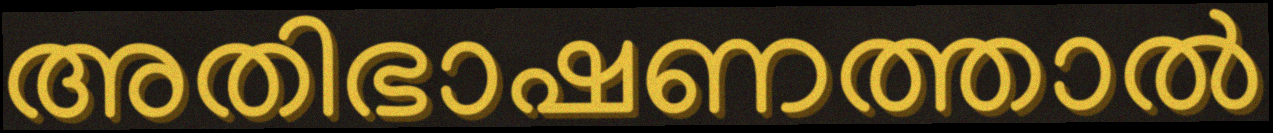
അതിഭാഷണത്താൽ